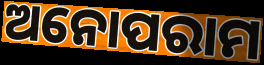
ଅନୋପରାମ